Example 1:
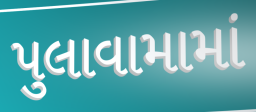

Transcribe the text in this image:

પુલાવામામાં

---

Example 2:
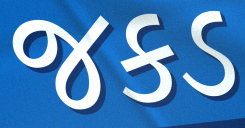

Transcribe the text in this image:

જકડ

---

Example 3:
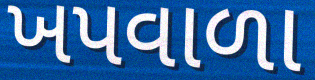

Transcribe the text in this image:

ખપવાળા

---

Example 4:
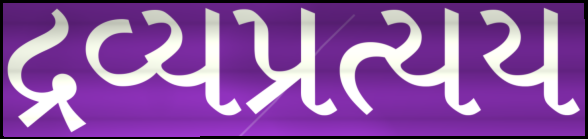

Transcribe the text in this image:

દ્રવ્યપ્રત્યય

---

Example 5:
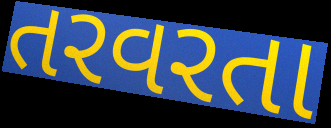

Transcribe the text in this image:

તરવરતા